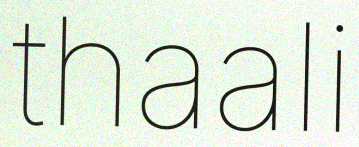
thaali